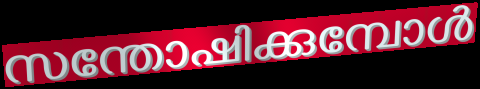
സന്തോഷിക്കുമ്പോൾ